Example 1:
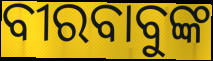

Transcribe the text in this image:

ବୀରବାବୁଙ୍କ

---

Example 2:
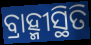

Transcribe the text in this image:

ବ୍ରାହ୍ମୀସ୍ଥିତି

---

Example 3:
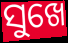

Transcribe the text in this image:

ସୁଖେ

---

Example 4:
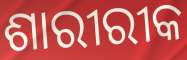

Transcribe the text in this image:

ଶାରୀରୀକ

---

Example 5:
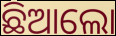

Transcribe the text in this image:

ଛିଆଲୋ